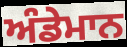
ਅੰਡੇਮਾਨ